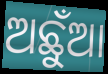
ଅଛୁଁଆ